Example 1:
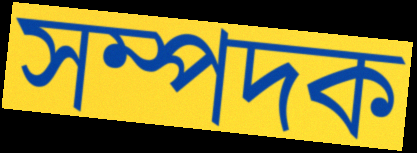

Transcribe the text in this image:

সম্পদক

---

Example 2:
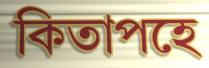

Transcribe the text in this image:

কিতাপহে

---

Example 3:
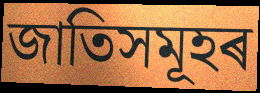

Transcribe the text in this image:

জাতিসমূহৰ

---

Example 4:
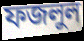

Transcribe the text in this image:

ফজলুল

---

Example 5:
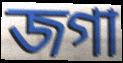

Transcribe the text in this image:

জগা